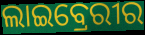
ଲାଇବ୍ରେରୀର